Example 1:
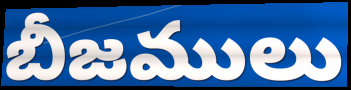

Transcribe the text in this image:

బీజములు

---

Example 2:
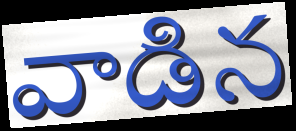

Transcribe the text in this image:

వాడిన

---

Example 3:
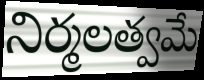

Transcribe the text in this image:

నిర్మలత్వమే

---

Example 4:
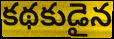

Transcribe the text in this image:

కథకుడైన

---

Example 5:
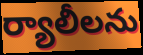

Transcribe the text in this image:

ర్యాలీలను